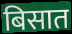
बिसात